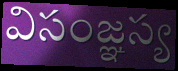
విసంజ్ఞస్య